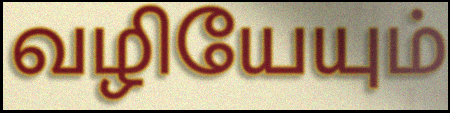
வழியேயும்